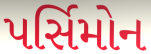
પર્સિમોન